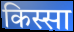
किस्सा